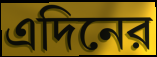
এদিনের